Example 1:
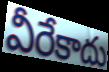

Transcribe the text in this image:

వీరేకాదు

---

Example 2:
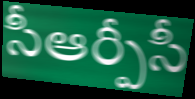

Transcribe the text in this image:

సీఆర్పీసీ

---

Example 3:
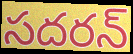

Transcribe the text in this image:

సదరన్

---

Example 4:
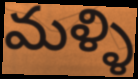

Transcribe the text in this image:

మళ్ళి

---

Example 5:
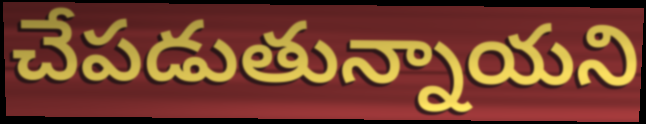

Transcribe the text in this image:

చేపడుతున్నాయని